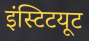
इंस्टिटयूट